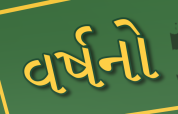
વર્ષનો